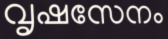
വൃഷസേനം